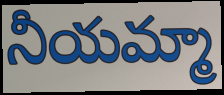
నీయమ్మా